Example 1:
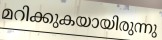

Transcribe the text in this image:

മറിക്കുകയായിരുന്നു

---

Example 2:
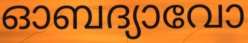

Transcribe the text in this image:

ഓബദ്യാവോ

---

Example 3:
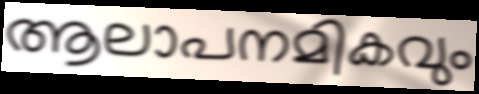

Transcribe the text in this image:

ആലാപനമികവും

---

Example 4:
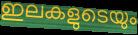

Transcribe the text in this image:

ഇലകളുടെയും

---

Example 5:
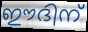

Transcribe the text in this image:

ഈദിന്